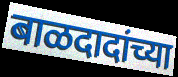
बाळदादांच्या